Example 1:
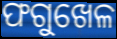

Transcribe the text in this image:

ଫଗୁଖେଳ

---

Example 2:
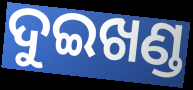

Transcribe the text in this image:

ଦୁଇଖଣ୍ଡ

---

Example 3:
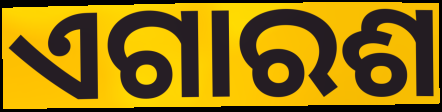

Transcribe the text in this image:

ଏଗାରଶ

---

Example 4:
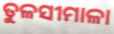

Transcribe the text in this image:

ତୁଳସୀମାଳା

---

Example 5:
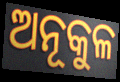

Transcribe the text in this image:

ଅନୂକୁଳ